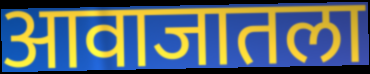
आवाजातला